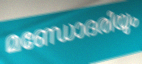
മണ്ഡോദരിയും